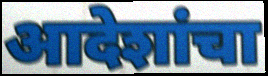
आदेशांचा